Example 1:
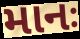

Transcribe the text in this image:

માનઃ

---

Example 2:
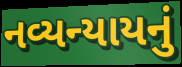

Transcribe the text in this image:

નવ્યન્યાયનું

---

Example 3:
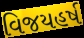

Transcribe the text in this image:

વિજયહર્ષ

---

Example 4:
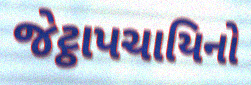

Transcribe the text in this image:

જેટ્ઠાપચાયિનો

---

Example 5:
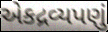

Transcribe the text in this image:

એકદ્રવ્યપણું